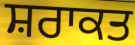
ਸ਼ਰਾਕਤ